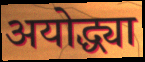
अयोद्ध्या